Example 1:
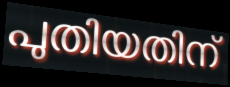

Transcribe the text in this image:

പുതിയതിന്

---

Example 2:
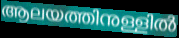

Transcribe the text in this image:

ആലയത്തിനുള്ളിൽ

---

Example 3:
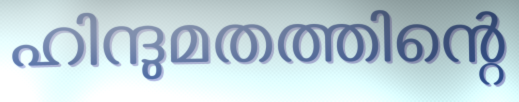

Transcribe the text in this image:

ഹിന്ദുമതത്തിന്റെ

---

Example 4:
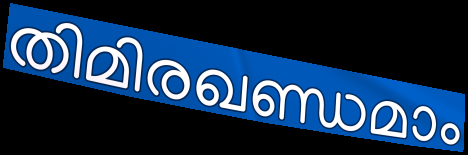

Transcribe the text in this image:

തിമിരഖണ്ഡമാം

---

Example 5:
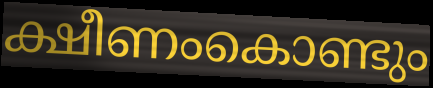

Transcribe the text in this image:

ക്ഷീണംകൊണ്ടും